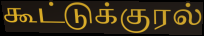
கூட்டுக்குரல்